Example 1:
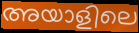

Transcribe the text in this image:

അയാളിലെ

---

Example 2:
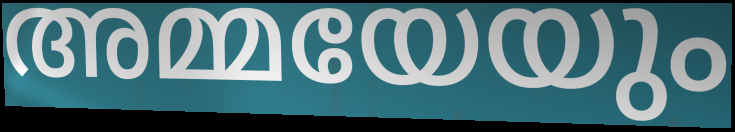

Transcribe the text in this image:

അമ്മയേയും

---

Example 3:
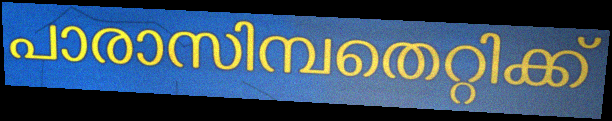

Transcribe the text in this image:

പാരാസിമ്പതെറ്റിക്ക്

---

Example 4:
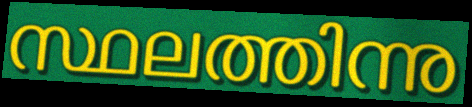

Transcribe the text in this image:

സ്ഥലത്തിന്നു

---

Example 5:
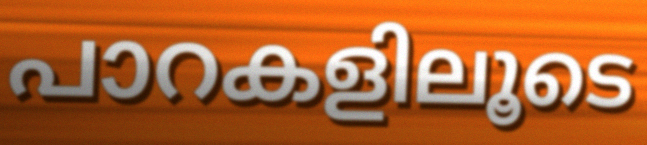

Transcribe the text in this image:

പാറകളിലൂടെ